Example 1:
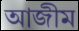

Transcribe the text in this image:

আজীম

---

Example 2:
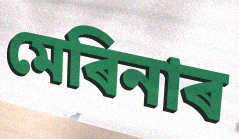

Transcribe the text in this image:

মেৰিনাৰ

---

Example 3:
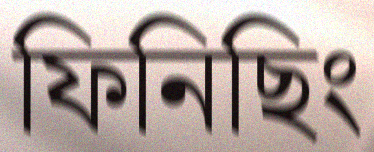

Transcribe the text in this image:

ফিনিছিং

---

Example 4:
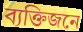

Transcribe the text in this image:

ব্যক্তিজনে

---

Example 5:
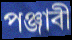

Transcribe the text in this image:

পঞ্জাবী